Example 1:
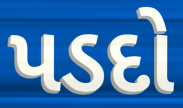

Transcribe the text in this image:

પડદો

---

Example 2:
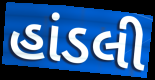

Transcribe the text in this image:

હાંડલી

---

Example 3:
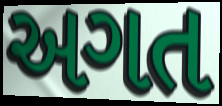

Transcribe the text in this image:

અગત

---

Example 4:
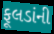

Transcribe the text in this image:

ફૂલડાંની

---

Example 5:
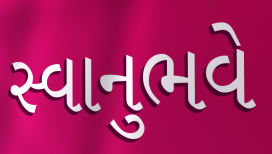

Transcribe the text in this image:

સ્વાનુભવે